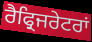
ਰੈਫ੍ਰਿਜਰੇਟਰਾਂ